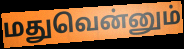
மதுவென்னும்